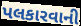
પલકારવાની